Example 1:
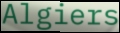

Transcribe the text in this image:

Algiers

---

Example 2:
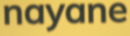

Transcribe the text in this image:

nayane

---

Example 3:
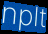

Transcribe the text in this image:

nplt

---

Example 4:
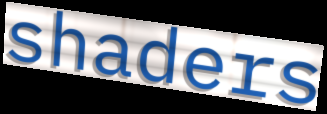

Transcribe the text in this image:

shaders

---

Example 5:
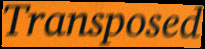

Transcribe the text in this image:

Transposed